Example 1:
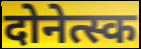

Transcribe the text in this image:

दोनेत्स्क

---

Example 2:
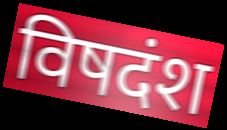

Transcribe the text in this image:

विषदंश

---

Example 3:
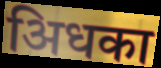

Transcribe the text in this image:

अिधका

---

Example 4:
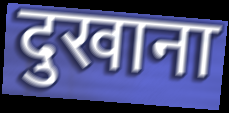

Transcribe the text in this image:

दुखाना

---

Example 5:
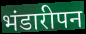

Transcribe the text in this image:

भंडारीपन